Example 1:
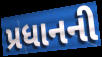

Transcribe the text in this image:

પ્રધાનની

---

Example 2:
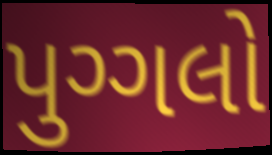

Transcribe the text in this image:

પુગ્ગલો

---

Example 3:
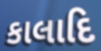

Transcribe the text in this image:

કાલાદિ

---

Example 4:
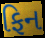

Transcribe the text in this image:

ફિન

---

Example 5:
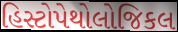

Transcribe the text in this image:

હિસ્ટોપેથોલોજિકલ